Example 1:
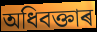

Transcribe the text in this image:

অধিবক্তাৰ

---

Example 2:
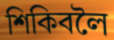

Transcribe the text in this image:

শিকিবলৈ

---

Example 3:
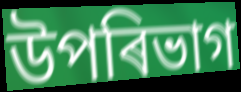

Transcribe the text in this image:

উপৰিভাগ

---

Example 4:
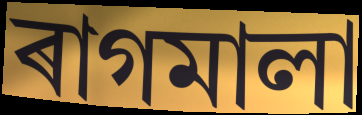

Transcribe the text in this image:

ৰাগমালা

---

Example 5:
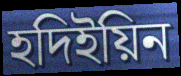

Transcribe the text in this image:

হদিইয়িন